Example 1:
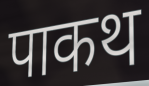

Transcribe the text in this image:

पाकथ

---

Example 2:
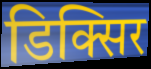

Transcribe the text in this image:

डिक्सिर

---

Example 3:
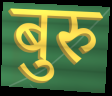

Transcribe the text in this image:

बुरु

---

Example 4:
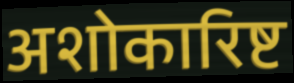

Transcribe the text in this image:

अशोकारिष्ट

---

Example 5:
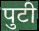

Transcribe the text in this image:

पुटी